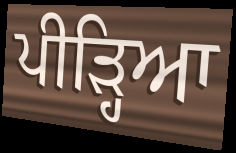
ਪੀੜ੍ਹਿਆ